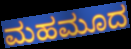
ಮಹಮೂದ